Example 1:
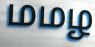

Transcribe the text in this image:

மமழ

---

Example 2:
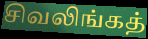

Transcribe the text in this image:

சிவலிங்கத்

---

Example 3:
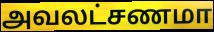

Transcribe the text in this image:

அவலட்சணமா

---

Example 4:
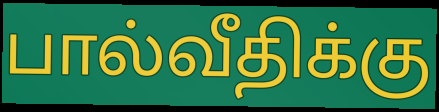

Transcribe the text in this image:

பால்வீதிக்கு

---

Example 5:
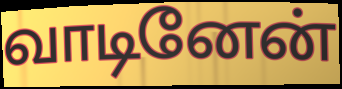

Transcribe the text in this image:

வாடினேன்